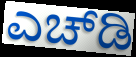
ಎಚ್‍ಡಿ